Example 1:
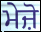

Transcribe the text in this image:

ਮੇਜ਼ੋ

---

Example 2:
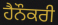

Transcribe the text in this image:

ਹੈਨੌਕਰੀ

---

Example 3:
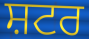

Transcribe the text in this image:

ਸ਼ਟਰ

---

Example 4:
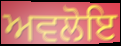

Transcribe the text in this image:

ਅਵਲੋਇ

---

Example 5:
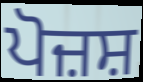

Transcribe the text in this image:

ਪੋਜ਼ਸ਼